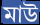
মাউ